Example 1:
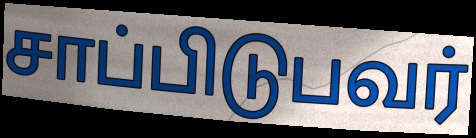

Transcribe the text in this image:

சாப்பிடுபவர்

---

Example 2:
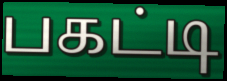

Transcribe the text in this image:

பகட்டி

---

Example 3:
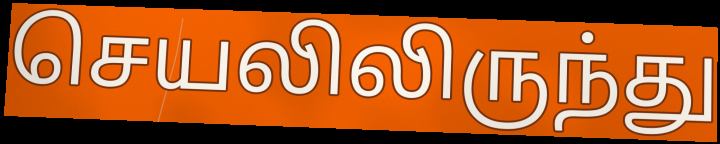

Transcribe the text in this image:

செயலிலிருந்து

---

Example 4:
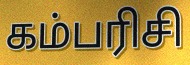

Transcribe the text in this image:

கம்பரிசி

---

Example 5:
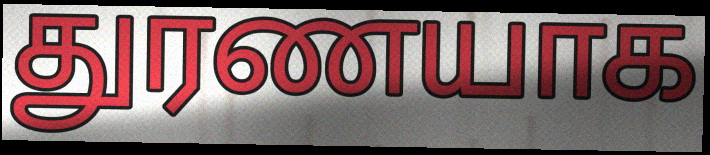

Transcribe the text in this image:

துரணயாக